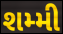
શમ્મી